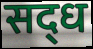
सद्ध